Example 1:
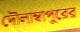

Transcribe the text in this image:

দৌলাম্বাপুরের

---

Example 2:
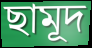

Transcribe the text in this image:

ছামূদ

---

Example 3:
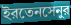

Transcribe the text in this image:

ইরতেনসেনুর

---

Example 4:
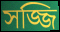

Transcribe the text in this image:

সজ্জি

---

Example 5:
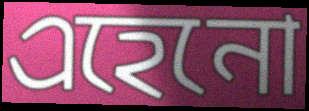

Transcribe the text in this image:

এহেনো